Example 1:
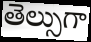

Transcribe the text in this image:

తెల్సుగా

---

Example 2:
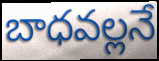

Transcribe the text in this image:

బాధవల్లనే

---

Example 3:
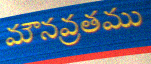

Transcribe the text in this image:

మౌనవ్రతము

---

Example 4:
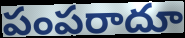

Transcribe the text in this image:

పంపరాదూ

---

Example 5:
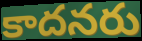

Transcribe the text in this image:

కాదనరు